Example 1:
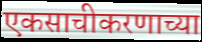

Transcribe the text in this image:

एकसाचीकरणाच्या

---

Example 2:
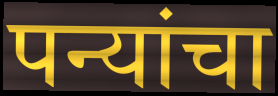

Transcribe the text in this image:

पन्यांचा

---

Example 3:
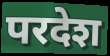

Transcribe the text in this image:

परदेश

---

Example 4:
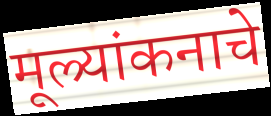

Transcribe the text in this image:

मूल्यांकनाचे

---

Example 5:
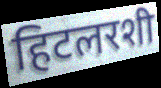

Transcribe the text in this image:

हिटलरशी